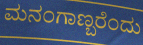
ಮನಂಗಾಣ್ಬರೆಂದು